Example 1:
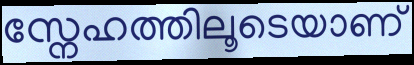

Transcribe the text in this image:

സ്നേഹത്തിലൂടെയാണ്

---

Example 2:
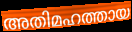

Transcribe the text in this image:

അതിമഹത്തായ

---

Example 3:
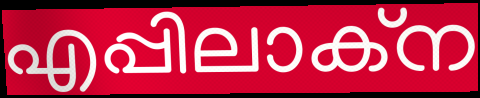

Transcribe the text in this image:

എപ്പിലാക്ന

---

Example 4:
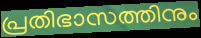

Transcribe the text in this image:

പ്രതിഭാസത്തിനും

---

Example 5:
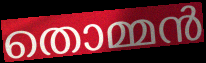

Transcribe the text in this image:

തൊമ്മൻ